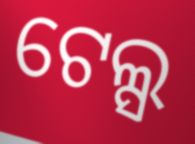
ଟେଲ୍ସ